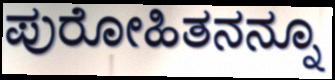
ಪುರೋಹಿತನನ್ನೂ